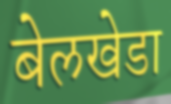
बेलखेडा